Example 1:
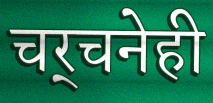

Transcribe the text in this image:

चर्चनेही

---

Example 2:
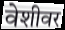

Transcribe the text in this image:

वेशीवर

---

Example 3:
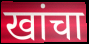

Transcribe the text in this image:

खांचा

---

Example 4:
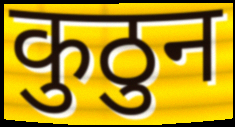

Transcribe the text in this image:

कुठुन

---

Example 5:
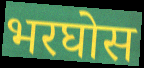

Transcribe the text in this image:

भरघोस